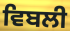
ਵਿਬਲੀ